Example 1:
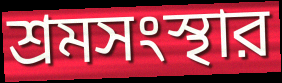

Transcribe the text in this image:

শ্রমসংস্থার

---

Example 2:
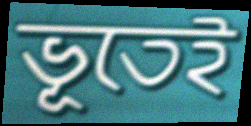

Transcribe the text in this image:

ভূতেই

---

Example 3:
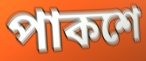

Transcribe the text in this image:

পাকশে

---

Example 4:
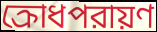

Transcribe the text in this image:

ক্রোধপরায়ণ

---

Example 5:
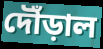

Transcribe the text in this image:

দৌঁড়াল